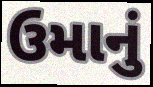
ઉમાનું